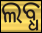
ଲବ୍ଧ